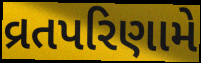
વ્રતપરિણામે